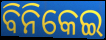
ବିନିକେଇ